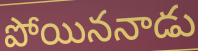
పోయిననాడు